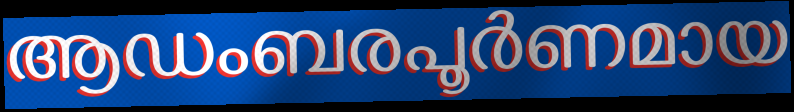
ആഡംബരപൂർണമായ